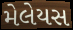
મેલેયસ